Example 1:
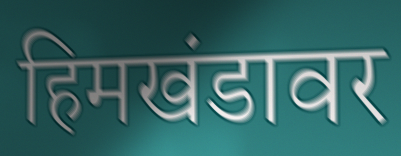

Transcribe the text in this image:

हिमखंडावर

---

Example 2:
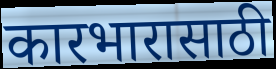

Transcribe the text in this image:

कारभारासाठी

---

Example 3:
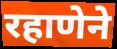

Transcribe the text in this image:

रहाणेने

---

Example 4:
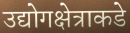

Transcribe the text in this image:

उद्योगक्षेत्राकडे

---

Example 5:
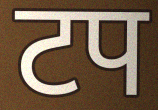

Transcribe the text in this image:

टप